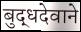
बुद्धदेवाने